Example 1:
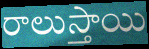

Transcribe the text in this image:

రాలుస్తాయి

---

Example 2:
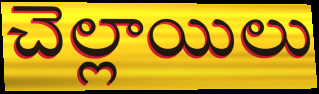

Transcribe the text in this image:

చెల్లాయిలు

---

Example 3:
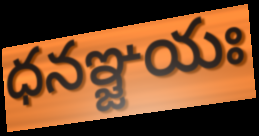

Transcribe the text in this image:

ధనఞ్జయః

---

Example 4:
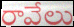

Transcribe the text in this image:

రావేలు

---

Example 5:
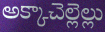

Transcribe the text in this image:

అక్కాచెల్లెల్లు